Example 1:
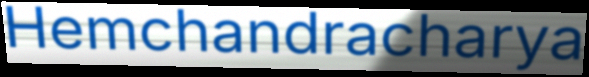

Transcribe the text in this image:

Hemchandracharya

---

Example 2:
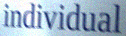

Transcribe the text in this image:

individual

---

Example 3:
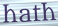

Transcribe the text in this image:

hath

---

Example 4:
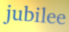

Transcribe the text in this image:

jubilee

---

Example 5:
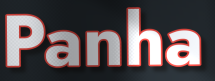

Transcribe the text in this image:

Panha